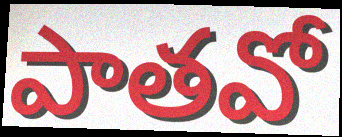
పాతవో